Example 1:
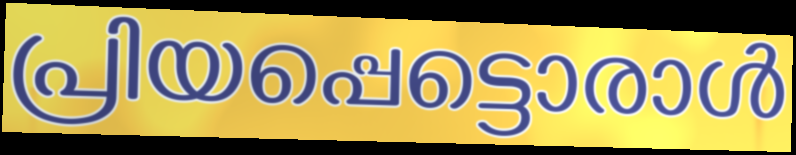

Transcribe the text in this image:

പ്രിയപ്പെട്ടൊരാൾ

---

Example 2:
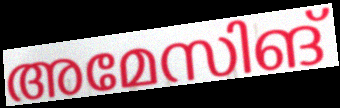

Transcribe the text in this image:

അമേസിങ്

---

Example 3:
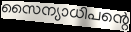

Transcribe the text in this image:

സൈന്യാധിപന്റെ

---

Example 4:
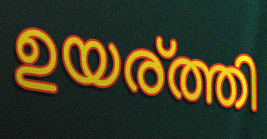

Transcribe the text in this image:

ഉയര്ത്തി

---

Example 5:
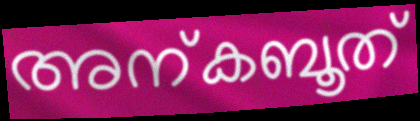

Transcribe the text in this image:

അന്കബൂത്